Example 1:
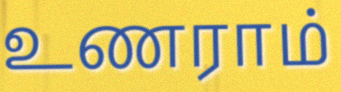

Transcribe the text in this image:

உணராம்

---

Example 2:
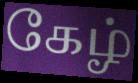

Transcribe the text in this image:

கேழ்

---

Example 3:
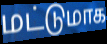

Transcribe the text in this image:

மட்டுமாக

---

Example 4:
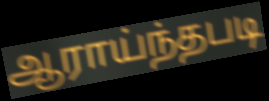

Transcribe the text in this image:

ஆராய்ந்தபடி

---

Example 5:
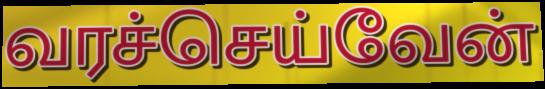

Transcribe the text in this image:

வரச்செய்வேன்